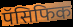
पॅसिफिक